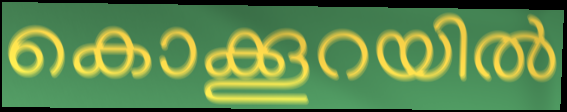
കൊക്കൂറയിൽ